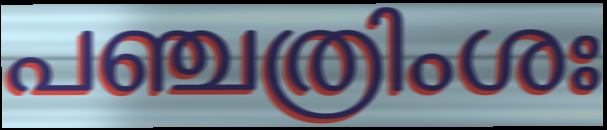
പഞ്ചത്രിംശഃ